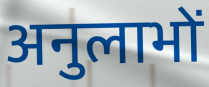
अनुलाभों